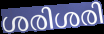
ശരിശരി